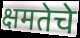
क्षमतेचे